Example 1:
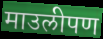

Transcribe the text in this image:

माउलीपण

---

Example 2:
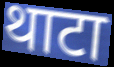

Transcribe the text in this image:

थाटा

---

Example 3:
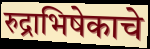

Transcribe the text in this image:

रुद्राभिषेकाचे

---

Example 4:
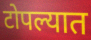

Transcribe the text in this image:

टोपल्यात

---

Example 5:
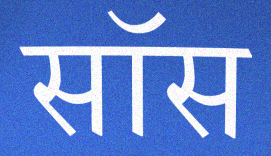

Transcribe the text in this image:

सॉस